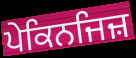
ਪੇਕਿਨਜਿਜ਼